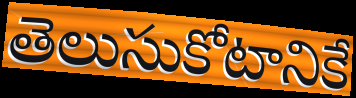
తెలుసుకోటానికే